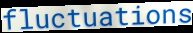
fluctuations